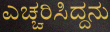
ಎಚ್ಚರಿಸಿದ್ದನು